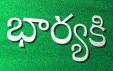
భార్యకి